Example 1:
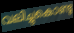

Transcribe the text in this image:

വലിച്ചുകൊണ്ടു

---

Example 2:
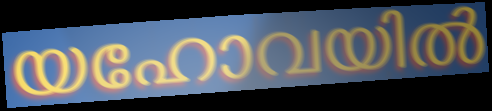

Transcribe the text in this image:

യഹോവയിൽ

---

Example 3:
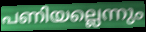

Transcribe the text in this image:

പണിയല്ലെന്നും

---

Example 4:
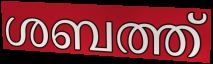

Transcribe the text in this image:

ശബത്ത്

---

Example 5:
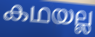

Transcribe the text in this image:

കഥയല്ല